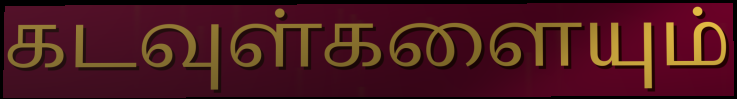
கடவுள்களையும்